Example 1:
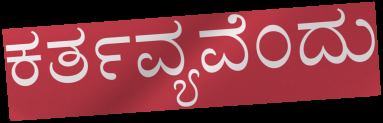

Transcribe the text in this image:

ಕರ್ತವ್ಯವೆಂದು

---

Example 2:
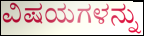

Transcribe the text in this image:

ವಿಷಯಗಳನ್ನು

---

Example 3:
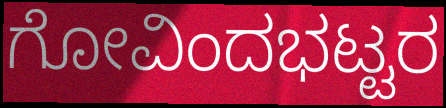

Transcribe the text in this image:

ಗೋವಿಂದಭಟ್ಟರ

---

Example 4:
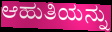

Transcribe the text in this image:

ಆಹುತಿಯನ್ನು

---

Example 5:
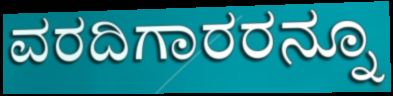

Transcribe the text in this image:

ವರದಿಗಾರರನ್ನೂ